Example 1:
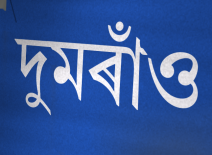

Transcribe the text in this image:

দুমৰাঁও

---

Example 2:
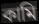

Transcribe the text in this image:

কামি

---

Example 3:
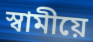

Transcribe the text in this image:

স্বামীয়ে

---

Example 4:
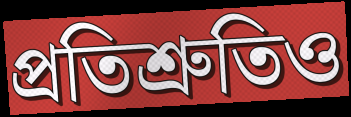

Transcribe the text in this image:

প্ৰতিশ্ৰুতিও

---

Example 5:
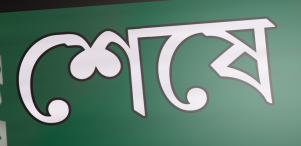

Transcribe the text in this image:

শেষে